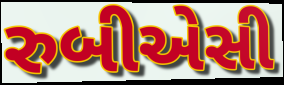
રુબીએસી